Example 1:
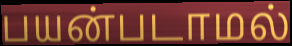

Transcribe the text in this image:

பயன்படாமல்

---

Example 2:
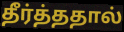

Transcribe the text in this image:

தீர்த்ததால்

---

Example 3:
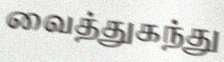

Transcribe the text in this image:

வைத்துகந்து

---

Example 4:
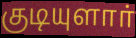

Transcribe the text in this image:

குடியுளார்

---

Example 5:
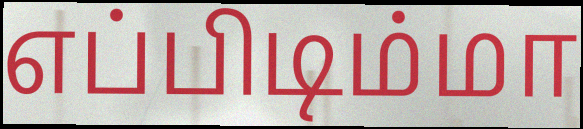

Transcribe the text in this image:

எப்பிடிம்மா